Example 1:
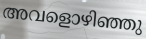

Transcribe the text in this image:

അവളൊഴിഞ്ഞു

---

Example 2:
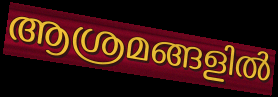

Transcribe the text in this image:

ആശ്രമങ്ങളിൽ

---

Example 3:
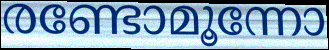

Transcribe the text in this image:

രണ്ടോമൂന്നോ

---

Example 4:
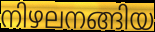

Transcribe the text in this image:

നിഴലനങ്ങിയ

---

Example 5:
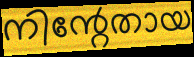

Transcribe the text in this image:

നിന്റേതായ